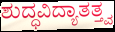
ಶುದ್ಧವಿದ್ಯಾತತ್ತ್ವ